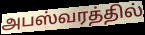
அபஸ்வரத்தில்